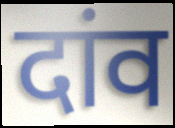
दांव